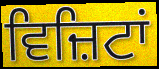
ਵਿਜ਼ਿਟਾਂ